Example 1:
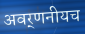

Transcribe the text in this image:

अवर्णनीयच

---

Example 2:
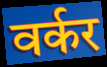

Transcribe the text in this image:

वर्कर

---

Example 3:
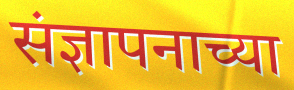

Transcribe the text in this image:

संज्ञापनाच्या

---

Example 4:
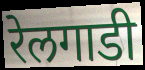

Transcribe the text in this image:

रेलगाडी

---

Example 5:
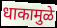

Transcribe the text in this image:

धाकामुळे